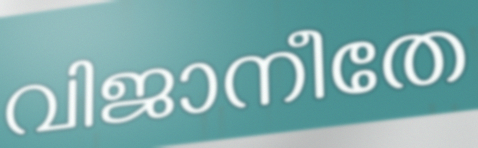
വിജാനീതേ